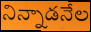
నిన్నాడనేల